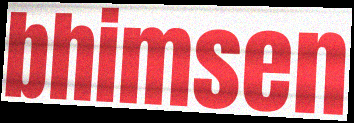
bhimsen